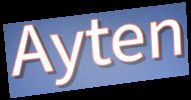
Ayten